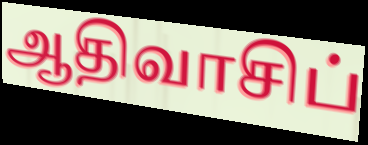
ஆதிவாசிப்